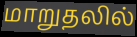
மாறுதலில்